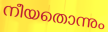
നീയതൊന്നും